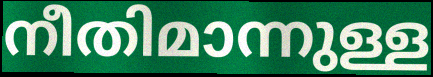
നീതിമാന്നുള്ള